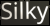
Silky